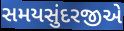
સમયસુંદરજીએ